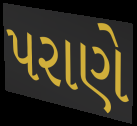
પરાણે